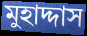
মুহাদ্দাস